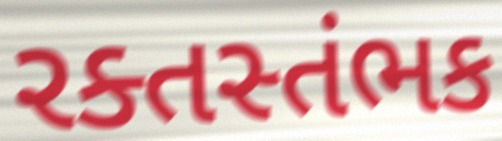
રક્તસ્તંભક